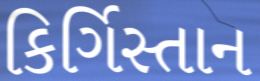
કિર્ગિસ્તાન